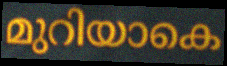
മുറിയാകെ